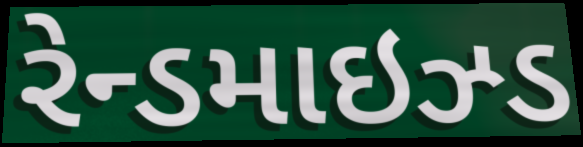
રેન્ડમાઇઝ્ડ